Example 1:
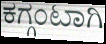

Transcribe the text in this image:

ಕಗ್ಗಂಟಾಗಿ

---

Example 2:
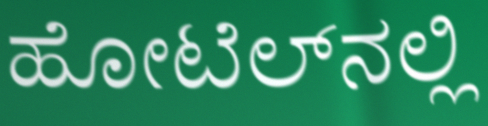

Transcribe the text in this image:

ಹೋಟೆಲ್‌ನಲ್ಲಿ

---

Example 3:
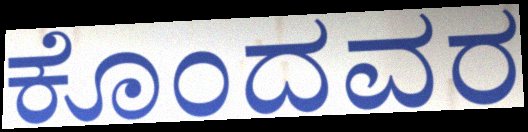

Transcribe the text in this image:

ಕೊಂದವರ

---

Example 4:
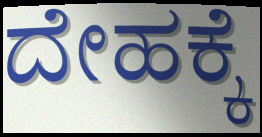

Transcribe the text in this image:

ದೇಹಕ್ಕೆ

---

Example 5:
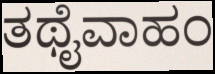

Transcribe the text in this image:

ತಥೈವಾಹಂ